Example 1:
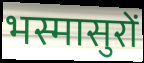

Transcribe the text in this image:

भस्मासुरों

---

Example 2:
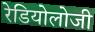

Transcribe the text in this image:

रेडियोलोजी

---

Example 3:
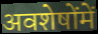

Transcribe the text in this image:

अवशेषोंमें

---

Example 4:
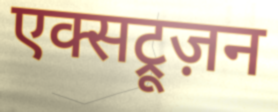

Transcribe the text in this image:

एक्सट्रूज़न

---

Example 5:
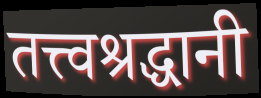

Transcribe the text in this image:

तत्त्वश्रद्धानी